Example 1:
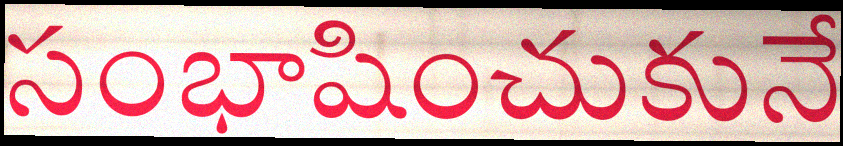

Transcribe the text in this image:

సంభాషించుకునే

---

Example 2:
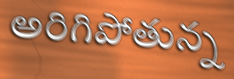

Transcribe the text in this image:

అరిగిపోతున్న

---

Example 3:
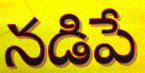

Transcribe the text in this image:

నడిపే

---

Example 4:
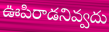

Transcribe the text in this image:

ఊపిరాడనివ్వదు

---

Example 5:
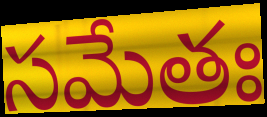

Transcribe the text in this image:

సమేతః